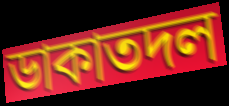
ডাকাতদল